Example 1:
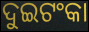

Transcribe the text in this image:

ଦୁଇଟଂକା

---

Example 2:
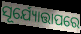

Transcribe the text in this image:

ସୂର୍ଯ୍ୟୋତ୍ତାପରେ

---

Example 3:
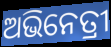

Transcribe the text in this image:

ଅଭିନେତ୍ରୀ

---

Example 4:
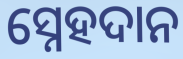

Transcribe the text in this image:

ସ୍ନେହଦାନ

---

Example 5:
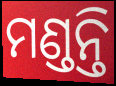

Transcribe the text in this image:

ମଣ୍ଡନ୍ତି